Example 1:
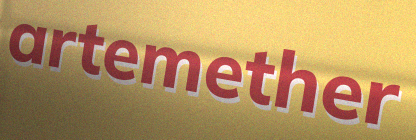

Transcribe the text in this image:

artemether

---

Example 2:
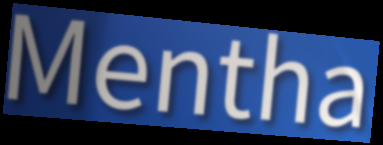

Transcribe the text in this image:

Mentha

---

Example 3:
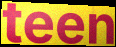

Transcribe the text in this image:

teen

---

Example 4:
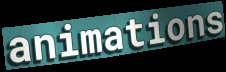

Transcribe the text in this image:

animations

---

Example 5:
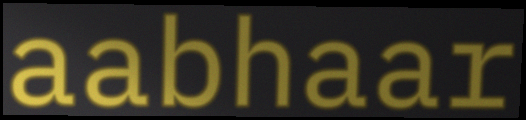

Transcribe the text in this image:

aabhaar